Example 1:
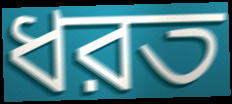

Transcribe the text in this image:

ধরত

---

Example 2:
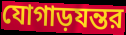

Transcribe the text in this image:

যোগাড়যন্তর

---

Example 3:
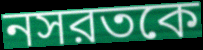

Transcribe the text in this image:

নসরতকে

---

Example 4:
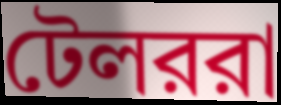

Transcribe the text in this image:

টেলররা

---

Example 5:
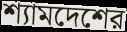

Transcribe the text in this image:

শ্যামদেশের